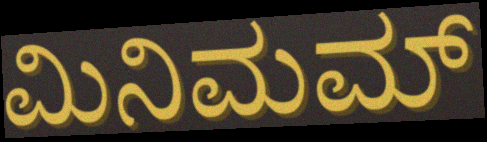
ಮಿನಿಮಮ್